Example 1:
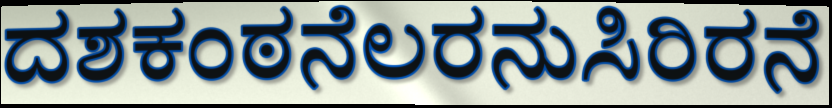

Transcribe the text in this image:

ದಶಕಂಠನೆಲರನುಸಿರಿರನೆ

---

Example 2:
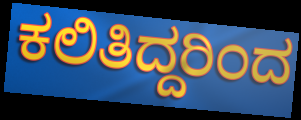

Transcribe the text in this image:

ಕಲಿತಿದ್ದರಿಂದ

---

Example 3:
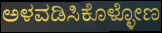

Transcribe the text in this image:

ಅಳವಡಿಸಿಕೊಳ್ಳೋಣ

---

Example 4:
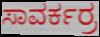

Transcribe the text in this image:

ಸಾವರ್ಕರ್ರ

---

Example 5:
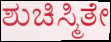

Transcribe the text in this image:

ಶುಚಿಸ್ಮಿತೇ